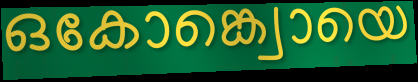
ഒകോങ്ക്വൊയെ